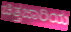
ಚಿತ್ತಜಾರಿಯ